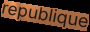
republique